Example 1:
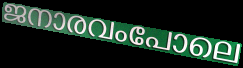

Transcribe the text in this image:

ജനാരവംപോലെ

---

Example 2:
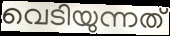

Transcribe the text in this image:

വെടിയുന്നത്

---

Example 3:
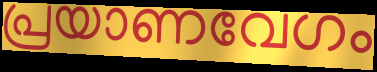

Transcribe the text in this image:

പ്രയാണവേഗം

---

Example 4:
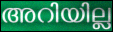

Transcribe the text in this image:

അറിയില്ല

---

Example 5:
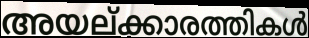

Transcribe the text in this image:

അയല്ക്കാരത്തികൾ